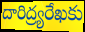
దారిద్ర్యరేఖకు